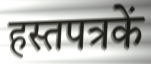
हस्तपत्रकें